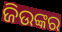
ଜିଉଙ୍କର